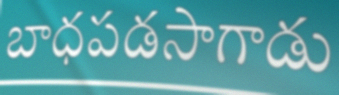
బాధపడసాగాడు